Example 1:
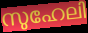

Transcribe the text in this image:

സുഹേലി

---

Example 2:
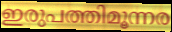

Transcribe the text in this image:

ഇരുപത്തിമൂന്നര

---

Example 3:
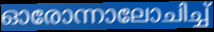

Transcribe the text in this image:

ഓരോന്നാലോചിച്ച്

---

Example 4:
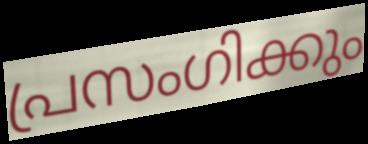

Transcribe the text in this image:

പ്രസംഗിക്കും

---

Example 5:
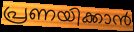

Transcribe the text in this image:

പ്രണയിക്കാൻ